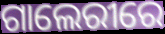
ଗାଲେରୀରେ